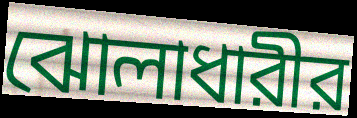
ঝোলাধারীর